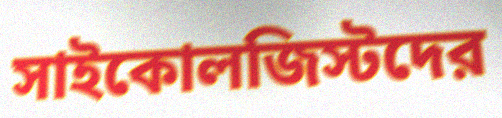
সাইকোলজিস্টদের